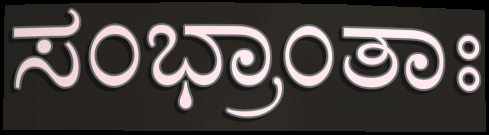
ಸಂಭ್ರಾಂತಾಃ